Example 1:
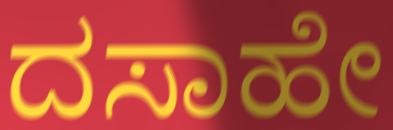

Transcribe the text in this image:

ದಸಾಹೇ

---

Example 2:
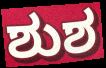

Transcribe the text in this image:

ಶುಶ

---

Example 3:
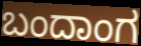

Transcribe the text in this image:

ಬಂದಾಂಗ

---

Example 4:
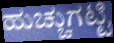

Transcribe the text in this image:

ಹುಚ್ಚುಗಟ್ಟಿ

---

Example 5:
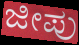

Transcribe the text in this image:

ಜೀಪು